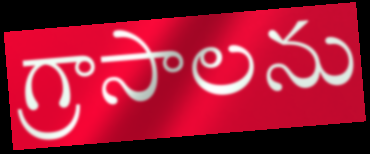
గ్రాసాలను